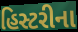
હિસ્ટરીના